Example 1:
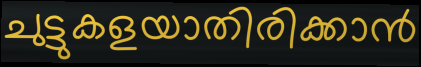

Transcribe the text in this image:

ചുട്ടുകളയാതിരിക്കാൻ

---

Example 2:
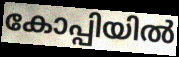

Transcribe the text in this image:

കോപ്പിയിൽ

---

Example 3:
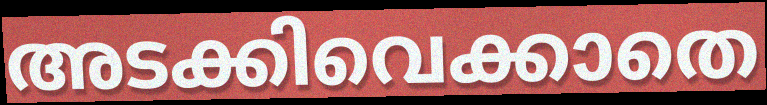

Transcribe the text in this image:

അടക്കിവെക്കാതെ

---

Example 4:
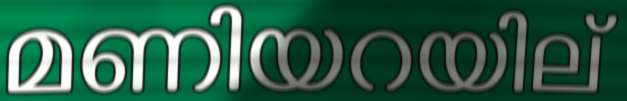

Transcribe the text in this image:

മണിയറയില്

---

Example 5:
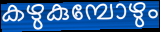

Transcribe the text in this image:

കഴുകുമ്പോഴും